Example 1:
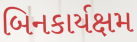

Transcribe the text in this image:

બિનકાર્યક્ષમ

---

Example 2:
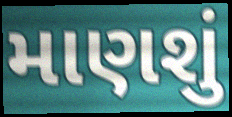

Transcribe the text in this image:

માણશું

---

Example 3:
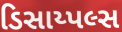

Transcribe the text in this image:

ડિસાય્પલ્સ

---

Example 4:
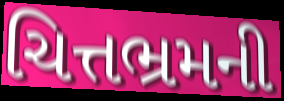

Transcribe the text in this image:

ચિત્તભ્રમની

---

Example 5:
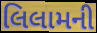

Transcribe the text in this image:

લિલામની